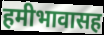
हमीभावासह